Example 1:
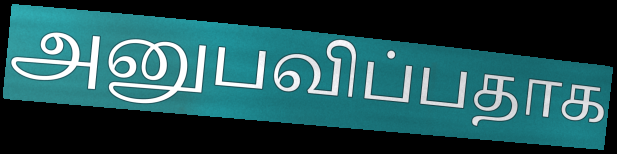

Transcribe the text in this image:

அனுபவிப்பதாக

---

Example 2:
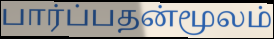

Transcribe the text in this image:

பார்ப்பதன்மூலம்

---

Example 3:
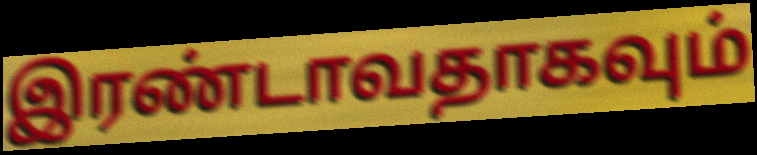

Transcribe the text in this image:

இரண்டாவதாகவும்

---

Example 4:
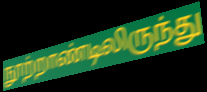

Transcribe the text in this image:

நூற்றாண்டிலிருந்து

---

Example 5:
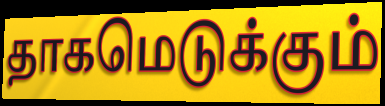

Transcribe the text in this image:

தாகமெடுக்கும்